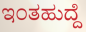
ಇಂತಹುದ್ದೆ